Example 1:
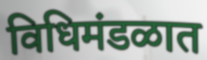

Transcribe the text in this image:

विधिमंडळात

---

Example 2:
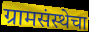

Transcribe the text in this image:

ग्रामसंस्थेचा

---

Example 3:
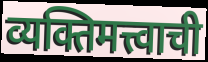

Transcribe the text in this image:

व्यक्तिमत्त्वाची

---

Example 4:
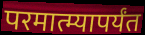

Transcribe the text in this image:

परमात्म्यापर्यंत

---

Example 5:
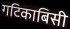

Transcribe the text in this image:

गटिकाबिसी